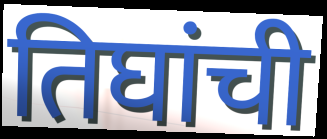
तिघांची